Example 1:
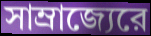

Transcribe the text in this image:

সাম্রাজ্যেরে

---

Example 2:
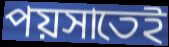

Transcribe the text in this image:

পয়সাতেই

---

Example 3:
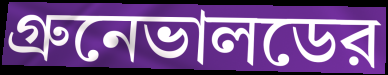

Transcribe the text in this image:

গ্রুনেভালডের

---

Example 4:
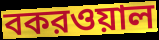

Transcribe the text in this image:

বকরওয়াল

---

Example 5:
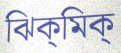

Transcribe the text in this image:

ঝিক্‌মিক্